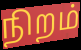
நிறம்